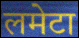
लमेटा